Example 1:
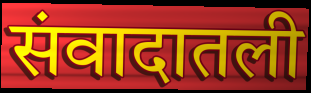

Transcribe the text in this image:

संवादातली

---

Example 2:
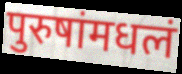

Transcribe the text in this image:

पुरुषांमधलं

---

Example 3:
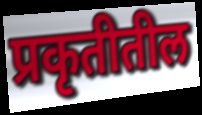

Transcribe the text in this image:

प्रकृतीतील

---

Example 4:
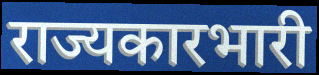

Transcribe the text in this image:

राज्यकारभारी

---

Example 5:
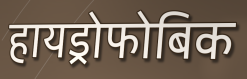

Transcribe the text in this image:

हायड्रोफोबिक